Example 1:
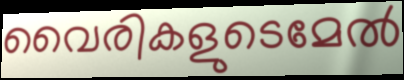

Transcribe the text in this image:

വൈരികളുടെമേൽ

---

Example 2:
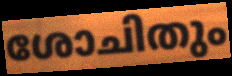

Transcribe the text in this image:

ശോചിതും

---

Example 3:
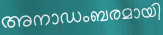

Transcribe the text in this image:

അനാഡംബരമായി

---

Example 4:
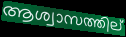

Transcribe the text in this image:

ആശ്വാസത്തില്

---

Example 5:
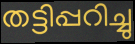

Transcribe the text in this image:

തട്ടിപ്പറിച്ചു